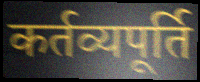
कर्तव्यपूर्ति